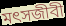
মৎসজীবী